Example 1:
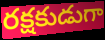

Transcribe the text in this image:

రక్షకుడుగా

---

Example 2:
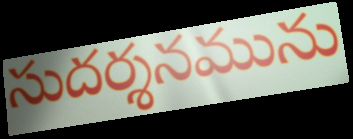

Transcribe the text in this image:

సుదర్శనమును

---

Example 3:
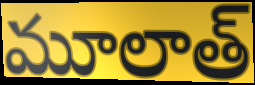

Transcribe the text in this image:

మూలాత్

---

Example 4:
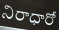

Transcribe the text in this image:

నిరాధారో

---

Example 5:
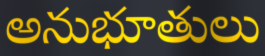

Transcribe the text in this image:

అనుభూతులు